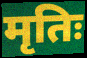
मृतिः